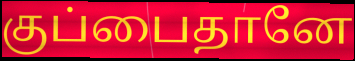
குப்பைதானே